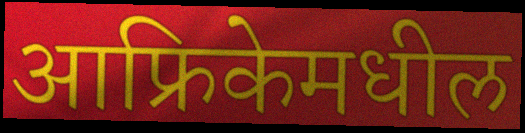
आफ्रिकेमधील